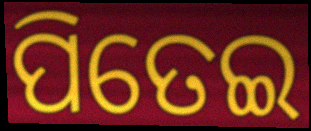
ପିତେଇ